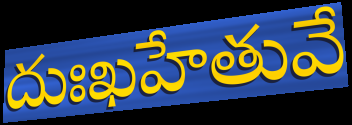
దుఃఖహేతువే